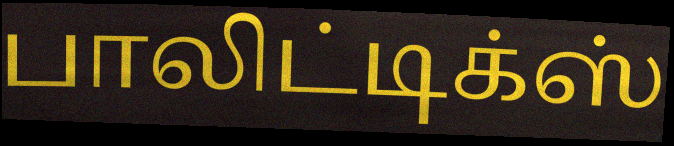
பாலிட்டிக்ஸ்